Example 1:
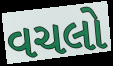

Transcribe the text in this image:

વચલો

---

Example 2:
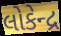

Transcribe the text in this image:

લોકેન્દ્ર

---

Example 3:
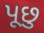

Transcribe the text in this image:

પૂછુ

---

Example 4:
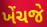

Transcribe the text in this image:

ખેંચજે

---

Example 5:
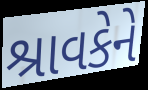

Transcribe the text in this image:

શ્રાવકેને